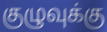
குழுவுக்கு